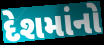
દેશમાંનો